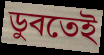
ডুবতেই